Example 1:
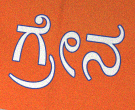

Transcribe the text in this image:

ಗ್ರೇನ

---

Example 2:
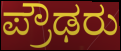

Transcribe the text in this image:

ಪ್ರೌಢರು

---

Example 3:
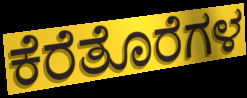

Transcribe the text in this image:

ಕೆರೆತೊರೆಗಳ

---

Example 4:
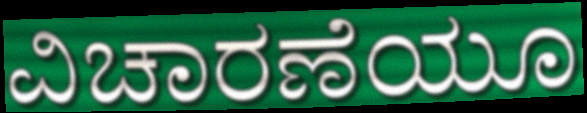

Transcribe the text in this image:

ವಿಚಾರಣೆಯೂ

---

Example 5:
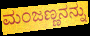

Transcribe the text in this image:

ಮಂಜಣ್ಣನನ್ನು